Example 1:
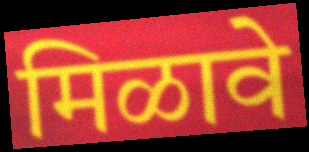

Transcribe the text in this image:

मिळावे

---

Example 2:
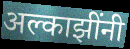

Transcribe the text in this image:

अल्काझींनी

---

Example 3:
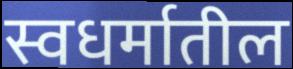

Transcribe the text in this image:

स्वधर्मातील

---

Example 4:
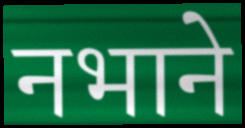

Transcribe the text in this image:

नभाने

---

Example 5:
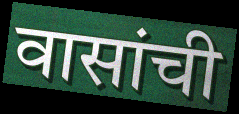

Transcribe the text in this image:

वासांची